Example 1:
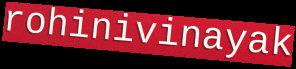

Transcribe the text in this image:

rohinivinayak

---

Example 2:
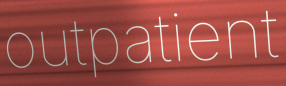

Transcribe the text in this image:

outpatient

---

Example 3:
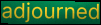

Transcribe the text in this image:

adjourned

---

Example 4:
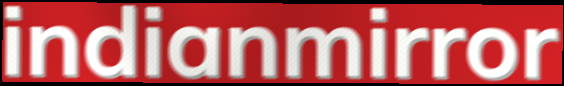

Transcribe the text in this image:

indianmirror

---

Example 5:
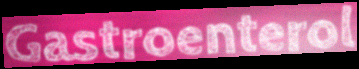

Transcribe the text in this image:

Gastroenterol